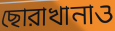
ছোরাখানাও